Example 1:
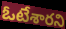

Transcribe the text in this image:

ఓటేశారని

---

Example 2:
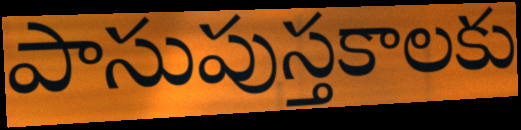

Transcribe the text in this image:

పాసుపుస్తకాలకు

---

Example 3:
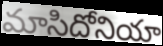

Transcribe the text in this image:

మాసిదోనియా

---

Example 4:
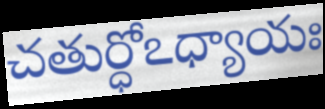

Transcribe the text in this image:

చతుర్ధోఽధ్యాయః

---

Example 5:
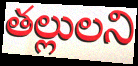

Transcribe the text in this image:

తల్లులని